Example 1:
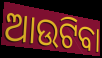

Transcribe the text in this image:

ଆଉଟିବା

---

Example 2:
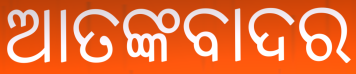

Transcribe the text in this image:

ଆତଙ୍କବାଦର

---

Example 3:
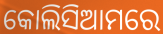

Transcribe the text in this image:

କୋଲିସିଆମରେ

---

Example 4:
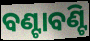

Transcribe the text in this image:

ବଣ୍ଟାବଣ୍ଟି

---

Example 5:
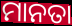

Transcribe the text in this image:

ମାନତା